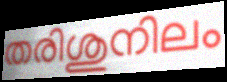
തരിശുനിലം